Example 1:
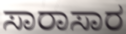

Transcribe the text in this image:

ಸಾರಾಸಾರ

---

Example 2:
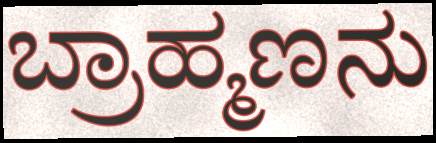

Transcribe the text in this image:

ಬ್ರಾಹ್ಮಣನು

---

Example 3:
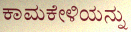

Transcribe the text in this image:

ಕಾಮಕೇಳಿಯನ್ನು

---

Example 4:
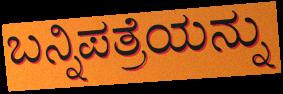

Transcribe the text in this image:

ಬನ್ನಿಪತ್ರೆಯನ್ನು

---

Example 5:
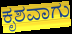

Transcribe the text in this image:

ಕೃಶವಾಗು